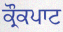
ਕ੍ਰੌਕਪਾਟ